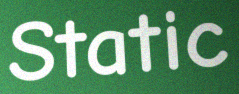
Static